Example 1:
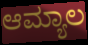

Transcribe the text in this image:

ಆಮ್ಯಾಲ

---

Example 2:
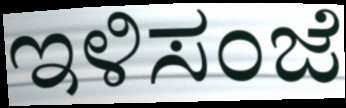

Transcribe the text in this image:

ಇಳಿಸಂಜೆ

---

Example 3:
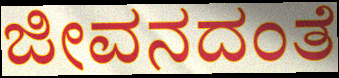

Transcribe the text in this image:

ಜೀವನದಂತೆ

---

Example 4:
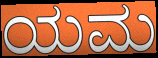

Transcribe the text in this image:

ಯಮ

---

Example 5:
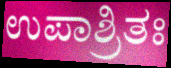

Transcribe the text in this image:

ಉಪಾಶ್ರಿತಃ